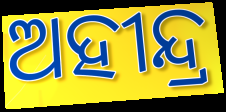
ଅହୀନ୍ଦ୍ର